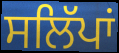
ਸਲਿੱਪਾਂ